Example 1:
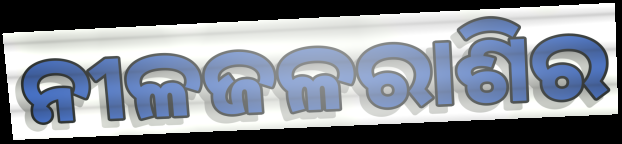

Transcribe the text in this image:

ନୀଳଜଳରାଶିର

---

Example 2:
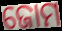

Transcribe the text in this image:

ଜୋମ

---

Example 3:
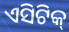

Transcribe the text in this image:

ଏସିଟିକ୍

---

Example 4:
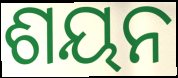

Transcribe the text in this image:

ଶୟନ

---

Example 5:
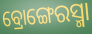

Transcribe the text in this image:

ବ୍ରୋଙ୍ଗେରସ୍ମା